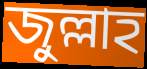
জুল্লাহ